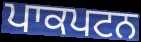
ਪਾਕਪਟਨ